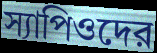
স্যাপিওদের